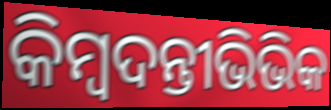
କିମ୍ବଦନ୍ତୀଭିଭିକ